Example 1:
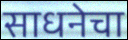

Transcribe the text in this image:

साधनेचा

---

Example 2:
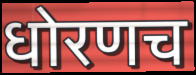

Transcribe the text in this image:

धोरणच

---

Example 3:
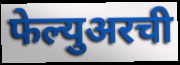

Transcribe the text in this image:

फेल्युअरची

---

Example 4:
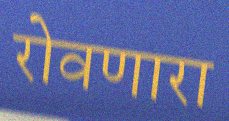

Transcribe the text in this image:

रोवणारा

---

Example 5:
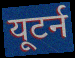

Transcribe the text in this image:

यूटर्न